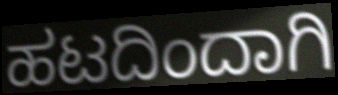
ಹಟದಿಂದಾಗಿ